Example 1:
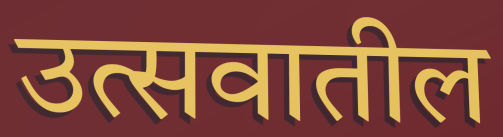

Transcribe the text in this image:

उत्सवातील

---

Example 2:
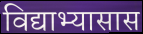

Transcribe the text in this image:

विद्याभ्यासास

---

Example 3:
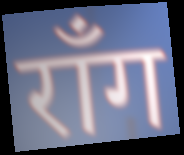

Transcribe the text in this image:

रॉंग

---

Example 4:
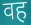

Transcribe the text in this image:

वह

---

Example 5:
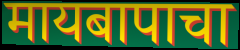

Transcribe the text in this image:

मायबापाचा